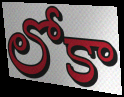
లోకా